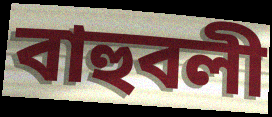
বাহুবলী